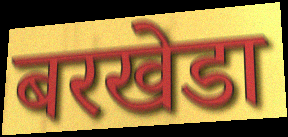
बरखेडा